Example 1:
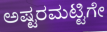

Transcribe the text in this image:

ಅಷ್ಟರಮಟ್ಟಿಗೇ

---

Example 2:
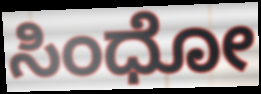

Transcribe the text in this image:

ಸಿಂಧೋ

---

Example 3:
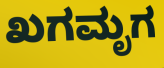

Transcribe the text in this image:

ಖಗಮೃಗ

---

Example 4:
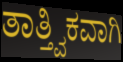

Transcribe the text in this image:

ತಾತ್ತ್ವಿಕವಾಗಿ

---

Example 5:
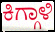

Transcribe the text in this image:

ಕಿಗ್ಗಾಳಿ